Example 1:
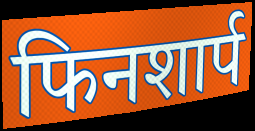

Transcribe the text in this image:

फिनशार्प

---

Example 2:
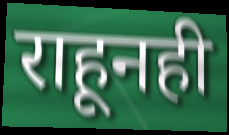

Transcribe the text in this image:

राहूनही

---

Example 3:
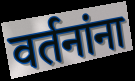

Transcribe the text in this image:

वर्तनांना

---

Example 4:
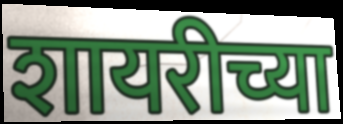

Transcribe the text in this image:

शायरीच्या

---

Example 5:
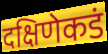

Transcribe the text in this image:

दक्षिणेकडं